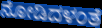
ನೋಡಿದಳಂತೆ